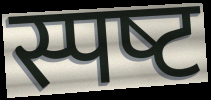
स्‍पष्‍ट